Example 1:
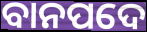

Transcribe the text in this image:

ବାନପଦେ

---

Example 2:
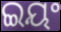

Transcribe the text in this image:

ଇୟଂ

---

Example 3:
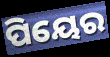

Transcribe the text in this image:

ପିୟେର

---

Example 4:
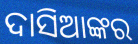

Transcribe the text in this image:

ଦାସିଆଙ୍କର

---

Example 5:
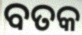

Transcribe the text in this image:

ବତକ